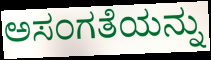
ಅಸಂಗತೆಯನ್ನು